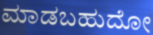
ಮಾಡಬಹುದೋ